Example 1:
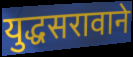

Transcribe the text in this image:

युद्धसरावाने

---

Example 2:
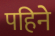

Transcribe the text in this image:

पहिने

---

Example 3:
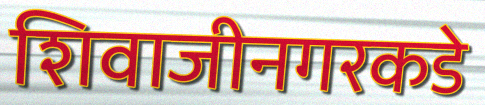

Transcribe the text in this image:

शिवाजीनगरकडे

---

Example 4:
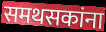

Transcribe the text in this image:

समथसकांना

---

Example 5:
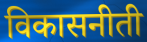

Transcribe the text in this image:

विकासनीती